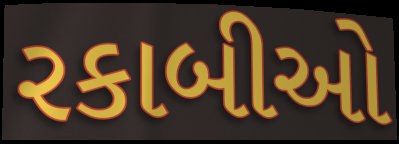
રકાબીઓ